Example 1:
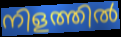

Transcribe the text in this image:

നിളത്തിൽ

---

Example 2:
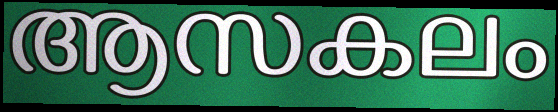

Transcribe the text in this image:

ആസകലം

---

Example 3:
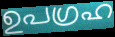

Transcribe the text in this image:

ഉപഗ്രഹ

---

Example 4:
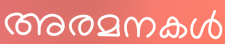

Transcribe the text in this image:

അരമനകൾ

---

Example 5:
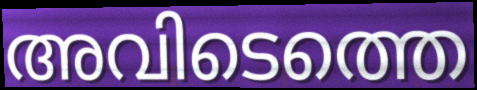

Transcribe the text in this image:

അവിടെത്തെ